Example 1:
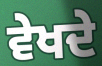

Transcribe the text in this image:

ਵੇਖਦੇ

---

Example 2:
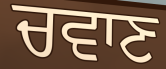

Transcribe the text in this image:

ਚਵਾਣ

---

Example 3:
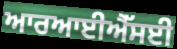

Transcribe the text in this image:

ਆਰਆਈਐੱਸਈ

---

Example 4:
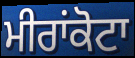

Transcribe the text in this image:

ਮੀਰਾਂਕੋਟਾ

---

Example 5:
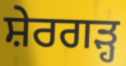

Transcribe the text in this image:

ਸ਼ੇਰਗੜ੍ਹ